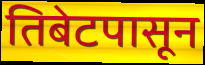
तिबेटपासून